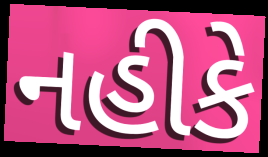
નહીકે